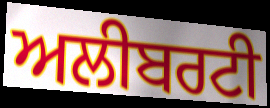
ਅਲੀਬਰਟੀ